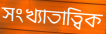
সংখ্যাতাত্বিক